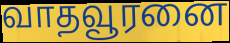
வாதவூரனை